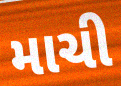
માચી